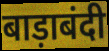
बाड़ाबंदी